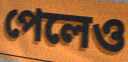
পেলেও